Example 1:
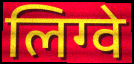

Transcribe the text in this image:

लिग्वे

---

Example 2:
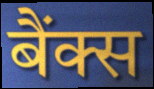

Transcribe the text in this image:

बैंक्‍स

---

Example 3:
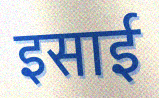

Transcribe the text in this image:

इसाई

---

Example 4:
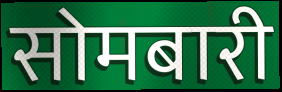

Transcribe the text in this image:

सोमबारी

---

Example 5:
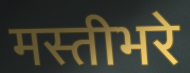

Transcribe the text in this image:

मस्तीभरे